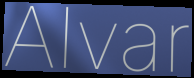
Alvar